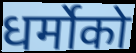
धर्मोको